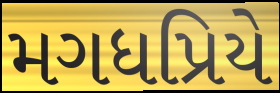
મગધપ્રિયે